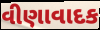
વીણાવાદક